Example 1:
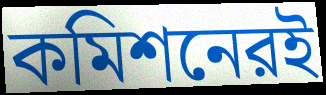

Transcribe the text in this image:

কমিশনেরই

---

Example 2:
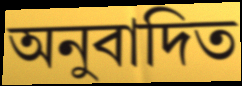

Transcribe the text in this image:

অনুবাদিত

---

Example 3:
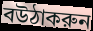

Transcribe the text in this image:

বউঠাকরুন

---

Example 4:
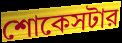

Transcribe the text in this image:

শোকেসটার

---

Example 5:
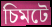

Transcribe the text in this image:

চিমটে